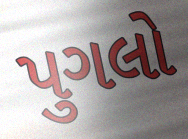
પુગલો